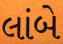
લાંબે